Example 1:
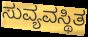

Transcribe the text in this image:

ಸುವ್ಯವಸ್ಥಿತ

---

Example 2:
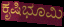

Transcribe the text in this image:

ಕೃಷಿಭೂಮಿ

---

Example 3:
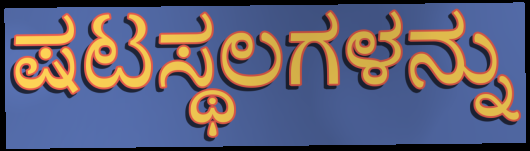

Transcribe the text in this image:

ಷಟಸ್ಥಲಗಳನ್ನು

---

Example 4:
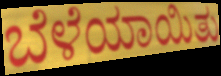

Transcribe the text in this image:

ಬೆಳೆಯಾಯಿತು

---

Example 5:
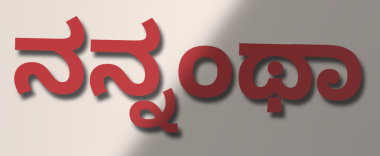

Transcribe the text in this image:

ನನ್ನಂಥಾ